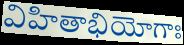
విహితాభియోగాః